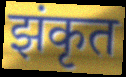
झंकृत